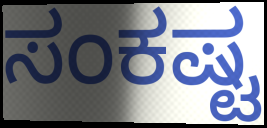
ಸಂಕಷ್ಟ